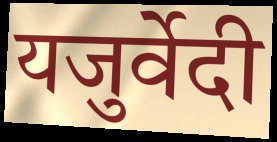
यजुर्वेदी